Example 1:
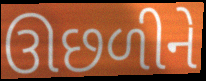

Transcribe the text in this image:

ઊછળીને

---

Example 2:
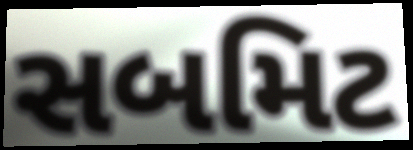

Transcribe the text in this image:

સબમિટ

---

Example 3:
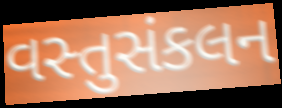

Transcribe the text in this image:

વસ્તુસંકલન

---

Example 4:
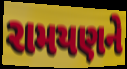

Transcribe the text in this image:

રામયણને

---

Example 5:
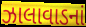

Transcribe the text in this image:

ઝાલાવાડનાં